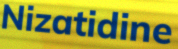
Nizatidine